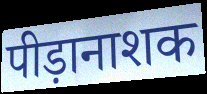
पीड़ानाशक